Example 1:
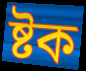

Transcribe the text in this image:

ষ্টক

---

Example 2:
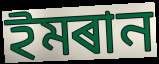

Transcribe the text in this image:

ইমৰান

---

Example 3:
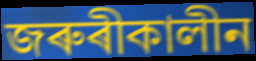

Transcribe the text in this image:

জৰুৰীকালীন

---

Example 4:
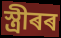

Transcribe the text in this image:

স্ত্ৰীৰৰ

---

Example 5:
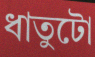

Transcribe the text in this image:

ধাতুটো